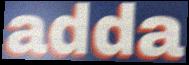
adda